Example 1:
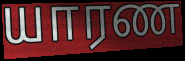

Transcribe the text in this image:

யாரண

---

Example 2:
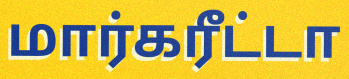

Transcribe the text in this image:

மார்கரீட்டா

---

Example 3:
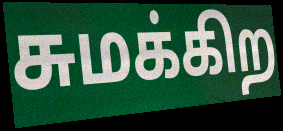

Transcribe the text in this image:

சுமக்கிற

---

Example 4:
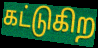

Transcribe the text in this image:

கட்டுகிற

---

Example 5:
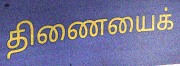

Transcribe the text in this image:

திணையைக்